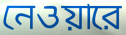
নেওয়ারে